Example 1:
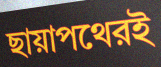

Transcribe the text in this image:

ছায়াপথেরই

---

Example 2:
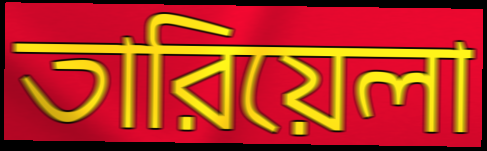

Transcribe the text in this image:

তারিয়েলা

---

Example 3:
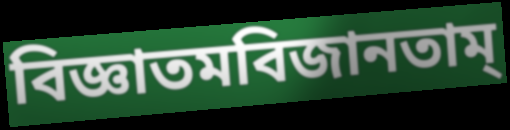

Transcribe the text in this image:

বিজ্ঞাতমবিজানতাম্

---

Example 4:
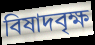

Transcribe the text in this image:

বিষাদবৃক্ষ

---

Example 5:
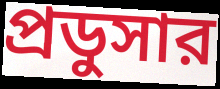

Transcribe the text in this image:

প্রডুসার